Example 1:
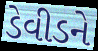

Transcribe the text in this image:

ડેવીડને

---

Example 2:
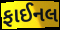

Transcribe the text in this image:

ફાઈનલ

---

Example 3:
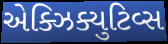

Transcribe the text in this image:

એક્ઝિક્યુટિવ્સ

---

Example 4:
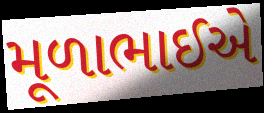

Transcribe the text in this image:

મૂળાભાઈએ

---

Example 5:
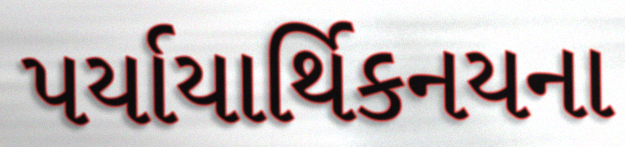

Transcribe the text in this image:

પર્યાયાર્થિકનયના